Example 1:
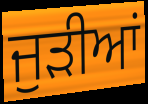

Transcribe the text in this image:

ਜੁੜੀਆਂ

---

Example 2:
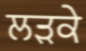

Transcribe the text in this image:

ਲੜਕੇ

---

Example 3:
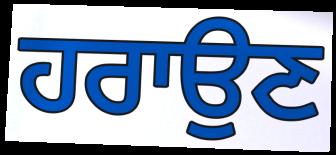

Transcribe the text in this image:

ਹਰਾਉਣ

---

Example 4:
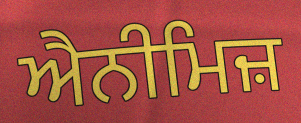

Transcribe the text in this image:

ਐਨੀਮਿਜ਼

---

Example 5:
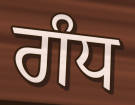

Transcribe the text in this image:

ਗੰਧ